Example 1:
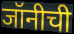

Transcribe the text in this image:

जॉनीची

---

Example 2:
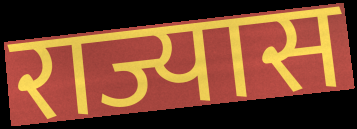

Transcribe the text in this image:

राज्यास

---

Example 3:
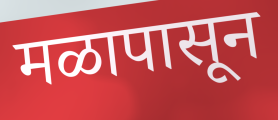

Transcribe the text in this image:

मळापासून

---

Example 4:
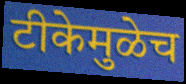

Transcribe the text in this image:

टीकेमुळेच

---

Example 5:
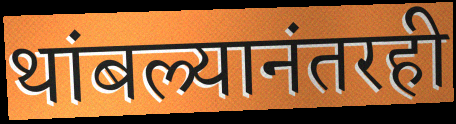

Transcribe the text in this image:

थांबल्यानंतरही